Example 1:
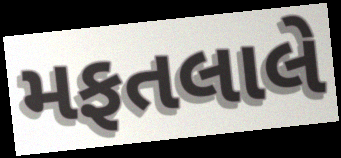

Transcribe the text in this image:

મફતલાલે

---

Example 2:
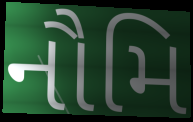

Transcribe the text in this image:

નૌમિ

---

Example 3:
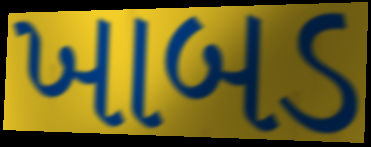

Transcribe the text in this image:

ખાબડ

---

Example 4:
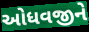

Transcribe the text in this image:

ઓધવજીને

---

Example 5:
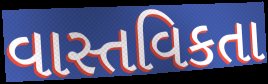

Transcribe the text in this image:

વાસ્તવિકતા